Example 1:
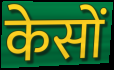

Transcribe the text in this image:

केसों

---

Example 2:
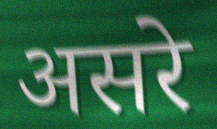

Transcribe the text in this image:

असरे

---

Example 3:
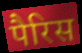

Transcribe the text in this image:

पैरिस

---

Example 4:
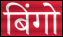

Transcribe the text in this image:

बिंगो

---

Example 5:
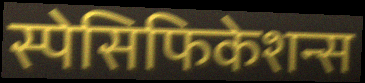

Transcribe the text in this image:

स्पेसिफिकेशन्स